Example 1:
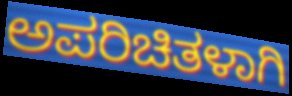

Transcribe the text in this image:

ಅಪರಿಚಿತಳಾಗಿ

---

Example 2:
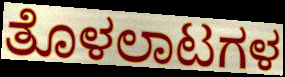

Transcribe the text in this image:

ತೊಳಲಾಟಗಳ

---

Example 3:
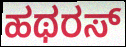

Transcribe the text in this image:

ಹಥರಸ್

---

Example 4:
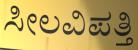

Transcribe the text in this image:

ಸೀಲವಿಪತ್ತಿ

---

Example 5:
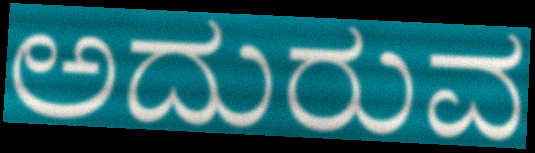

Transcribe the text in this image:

ಅದುರುವ